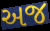
અજ